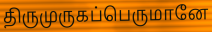
திருமுருகப்பெருமானே